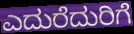
ಎದುರೆದುರಿಗೆ